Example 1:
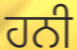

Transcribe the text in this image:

ਹਨੀ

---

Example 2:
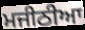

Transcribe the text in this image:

ਮਜੀਠੀਆ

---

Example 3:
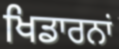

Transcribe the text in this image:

ਖਿਡਾਰਨਾਂ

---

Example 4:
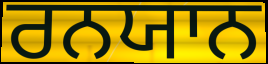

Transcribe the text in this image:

ਰਨਯਾਨ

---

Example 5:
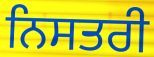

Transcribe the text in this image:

ਨਿਸਤਰੀ